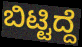
ಬಿಟ್ಟಿದ್ದೆ